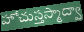
హోచుస్తస్మాద్వా